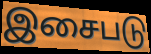
இசைபடு